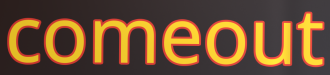
comeout